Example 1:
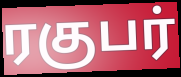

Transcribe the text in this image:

ரகுபர்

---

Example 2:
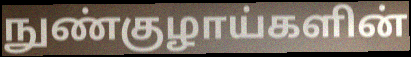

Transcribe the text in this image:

நுண்குழாய்களின்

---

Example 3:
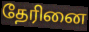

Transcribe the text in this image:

தேரினை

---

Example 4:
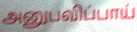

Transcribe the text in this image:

அனுபவிப்பாய்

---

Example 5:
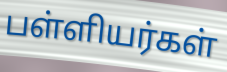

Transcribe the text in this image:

பள்ளியர்கள்